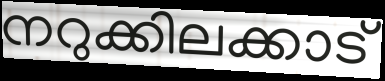
നറുക്കിലക്കാട്